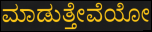
ಮಾಡುತ್ತೇವೆಯೋ